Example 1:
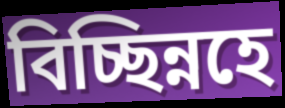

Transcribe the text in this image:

বিচ্ছিন্নহে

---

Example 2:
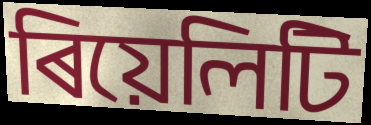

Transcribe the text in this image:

ৰিয়েলিটি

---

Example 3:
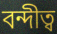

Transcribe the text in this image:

বন্দীত্ব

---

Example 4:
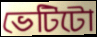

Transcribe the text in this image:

ভেটিটো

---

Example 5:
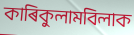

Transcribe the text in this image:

কাৰিকুলামবিলাক